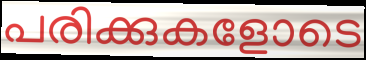
പരിക്കുകളോടെ